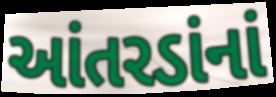
આંતરડાંનાં